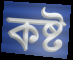
কষ্ট